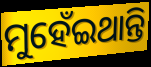
ମୁହେଁଇଥାନ୍ତି